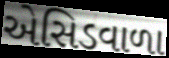
એસિડવાળા